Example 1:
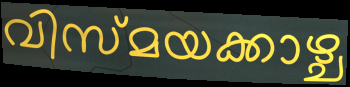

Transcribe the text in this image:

വിസ്മയക്കാഴ്ച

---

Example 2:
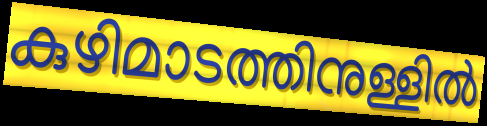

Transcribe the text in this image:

കുഴിമാടത്തിനുള്ളിൽ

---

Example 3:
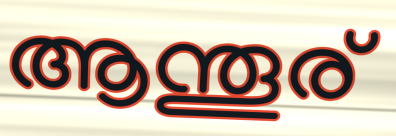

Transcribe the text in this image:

ആന്തൂര്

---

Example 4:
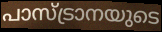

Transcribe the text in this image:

പാസ്ട്രാനയുടെ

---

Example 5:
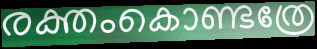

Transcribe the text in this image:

രക്തംകൊണ്ടത്രേ